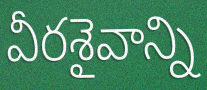
వీరశైవాన్ని